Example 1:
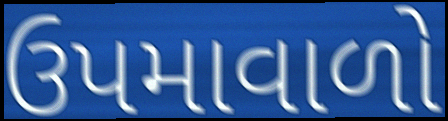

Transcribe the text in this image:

ઉપમાવાળો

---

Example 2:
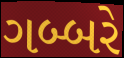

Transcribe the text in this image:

ગબ્બરે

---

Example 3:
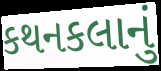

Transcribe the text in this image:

કથનકલાનું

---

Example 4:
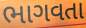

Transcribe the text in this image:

ભાગવતા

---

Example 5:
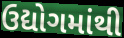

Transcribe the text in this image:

ઉદ્યોગમાંથી